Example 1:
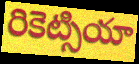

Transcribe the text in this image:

రికెట్సియా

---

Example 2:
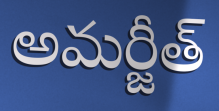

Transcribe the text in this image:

అమర్జీత్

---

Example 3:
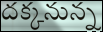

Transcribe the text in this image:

దక్కనున్న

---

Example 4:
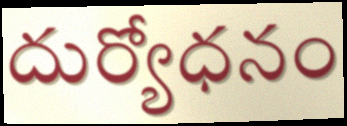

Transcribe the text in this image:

దుర్యోధనం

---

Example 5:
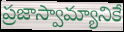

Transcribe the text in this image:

ప్రజాస్వామ్యానికే